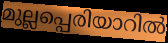
മുല്ലപ്പെരിയാറിൽ